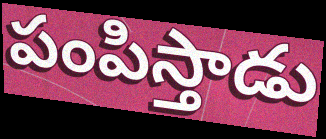
పంపిస్తాడు